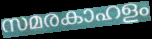
സമരകാഹളം